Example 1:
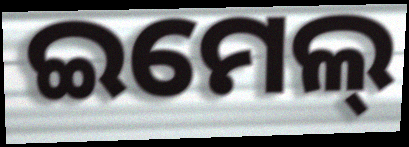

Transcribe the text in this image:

ଇମେଲ୍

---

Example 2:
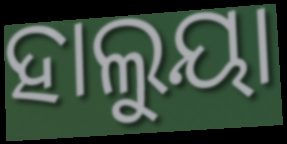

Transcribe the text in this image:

ହାଲୁୟା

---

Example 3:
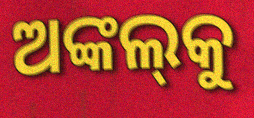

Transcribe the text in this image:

ଅଙ୍କଲ୍‌କୁ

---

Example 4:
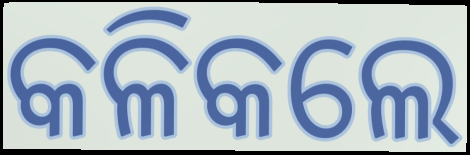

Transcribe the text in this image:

କଳିକଲେ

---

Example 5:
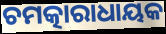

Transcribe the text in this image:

ଚମତ୍କାରାଧାୟକ